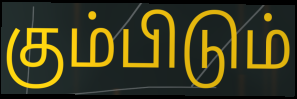
கும்பிடும்